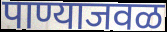
पाण्याजवळ